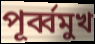
পূর্ব্বমুখ